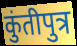
कुंतीपुत्र